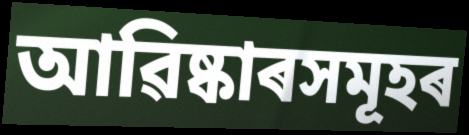
আৱিষ্কাৰসমূহৰ